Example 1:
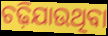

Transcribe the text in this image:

ଚଢ଼ିଯାଉଥିବା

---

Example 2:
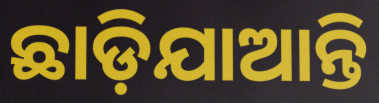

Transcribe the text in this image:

ଛାଡ଼ିଯାଆନ୍ତି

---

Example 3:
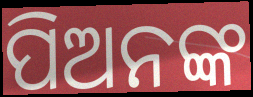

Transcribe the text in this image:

ପିଅନଙ୍କ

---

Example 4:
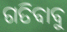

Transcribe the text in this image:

ଗତିବାବୁ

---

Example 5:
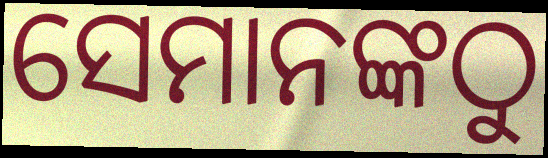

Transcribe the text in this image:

ସେମାନଙ୍କଠୁ